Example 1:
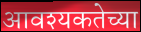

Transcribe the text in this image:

आवश्यकतेच्या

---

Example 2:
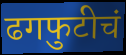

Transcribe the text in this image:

ढगफुटीचं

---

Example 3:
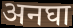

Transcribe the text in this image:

अनघा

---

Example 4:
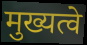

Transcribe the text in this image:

मुख्यत्वे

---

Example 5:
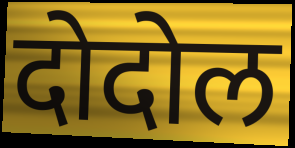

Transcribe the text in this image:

दोदोल